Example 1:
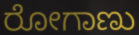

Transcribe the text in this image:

ರೋಗಾಣು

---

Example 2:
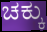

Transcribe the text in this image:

ಚಕ್ಕು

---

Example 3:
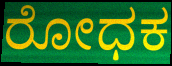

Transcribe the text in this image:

ರೋಧಕ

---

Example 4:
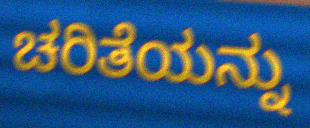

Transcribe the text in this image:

ಚರಿತೆಯನ್ನು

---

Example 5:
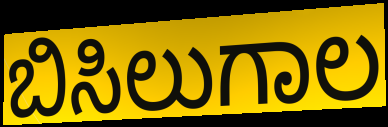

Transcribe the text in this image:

ಬಿಸಿಲುಗಾಲ